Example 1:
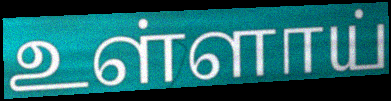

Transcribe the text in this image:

உள்ளாய்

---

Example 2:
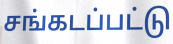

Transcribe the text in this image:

சங்கடப்பட்டு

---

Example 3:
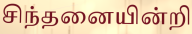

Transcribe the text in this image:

சிந்தனையின்றி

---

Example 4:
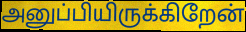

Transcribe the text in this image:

அனுப்பியிருக்கிறேன்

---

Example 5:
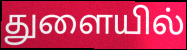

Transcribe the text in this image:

துளையில்